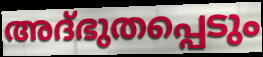
അദ്ഭുതപ്പെടും